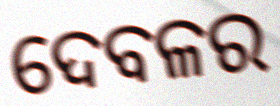
ଦେବଳର